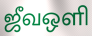
ஜீவஒளி